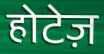
होटेज़